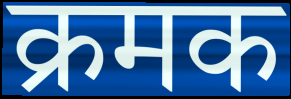
क्रमक